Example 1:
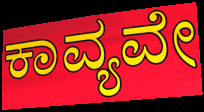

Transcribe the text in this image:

ಕಾವ್ಯವೇ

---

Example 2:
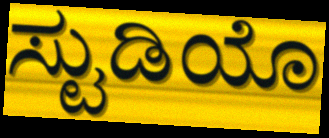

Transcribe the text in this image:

ಸ್ಟುಡಿಯೊ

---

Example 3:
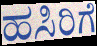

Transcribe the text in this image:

ಹಸಿರಿಗೆ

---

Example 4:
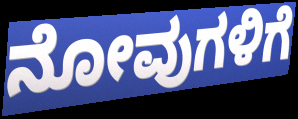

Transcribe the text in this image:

ನೋವುಗಳಿಗೆ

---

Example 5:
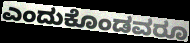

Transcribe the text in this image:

ಎಂದುಕೊಂಡವರೂ